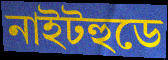
নাইটহুডে